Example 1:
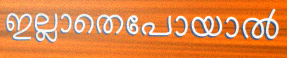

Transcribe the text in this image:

ഇല്ലാതെപോയാൽ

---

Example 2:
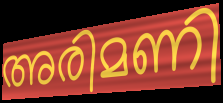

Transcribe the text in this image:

അരിമണി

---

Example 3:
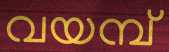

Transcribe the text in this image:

വയമ്പ്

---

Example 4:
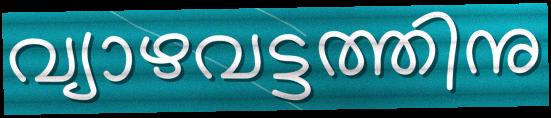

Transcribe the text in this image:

വ്യാഴവട്ടത്തിനു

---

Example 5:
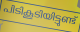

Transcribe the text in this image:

പിടികൂടിയിട്ടുണ്ട്